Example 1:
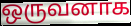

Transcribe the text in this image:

ஒருவனாக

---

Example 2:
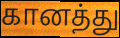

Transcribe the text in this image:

கானத்து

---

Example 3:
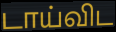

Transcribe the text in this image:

டாய்விட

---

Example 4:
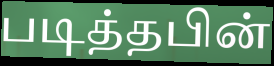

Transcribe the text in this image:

படித்தபின்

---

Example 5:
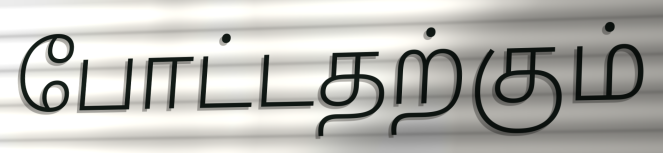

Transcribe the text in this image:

போட்டதற்கும்